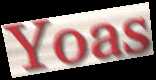
Yoas